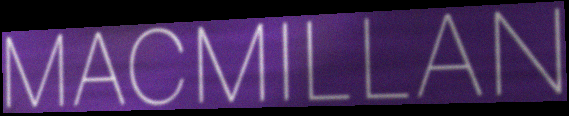
MACMILLAN